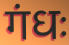
गंधः